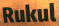
Rukul